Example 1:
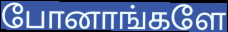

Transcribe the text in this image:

போனாங்களே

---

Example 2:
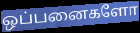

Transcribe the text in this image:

ஒப்பனைகளோ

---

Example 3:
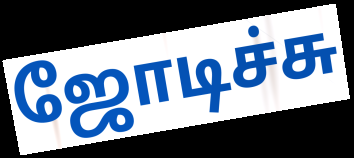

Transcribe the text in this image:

ஜோடிச்சு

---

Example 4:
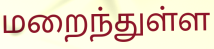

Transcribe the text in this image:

மறைந்துள்ள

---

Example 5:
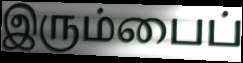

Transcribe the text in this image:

இரும்பைப்